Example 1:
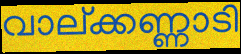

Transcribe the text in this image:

വാല്ക്കണ്ണാടി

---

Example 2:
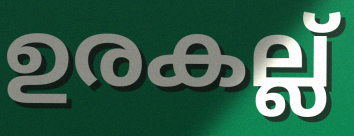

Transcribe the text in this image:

ഉരകല്ല്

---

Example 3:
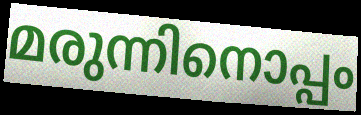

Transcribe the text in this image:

മരുന്നിനൊപ്പം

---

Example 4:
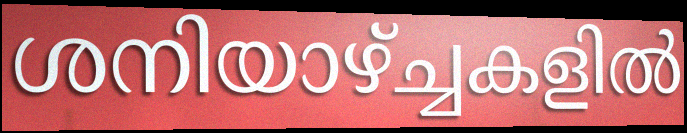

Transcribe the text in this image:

ശനിയാഴ്ച്ചകളിൽ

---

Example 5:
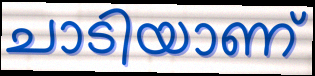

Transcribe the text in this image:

ചാടിയാണ്